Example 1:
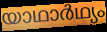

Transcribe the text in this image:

യാഥാർഥ്യം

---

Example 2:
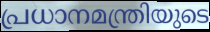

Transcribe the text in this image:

പ്രധാനമന്ത്രിയുടെ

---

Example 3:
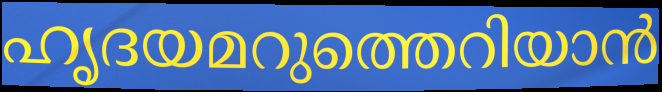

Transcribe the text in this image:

ഹൃദയമറുത്തെറിയാൻ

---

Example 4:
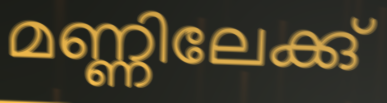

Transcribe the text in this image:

മണ്ണിലേക്കു്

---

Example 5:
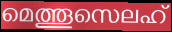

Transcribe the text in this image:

മെത്തൂസെലഹ്